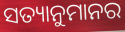
ସତ୍ୟାନୁମାନର